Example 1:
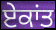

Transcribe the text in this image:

ਏਕਾਂਤ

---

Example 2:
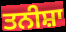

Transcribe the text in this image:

ਤਨੀਸ਼ਾ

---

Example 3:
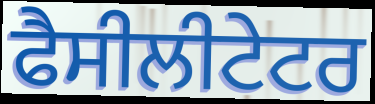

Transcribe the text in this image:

ਫੈਸੀਲੀਟੇਟਰ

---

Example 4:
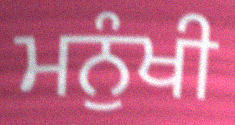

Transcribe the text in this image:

ਮਨੁੰਖੀ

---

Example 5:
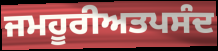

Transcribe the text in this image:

ਜਮਹੂਰੀਅਤਪਸੰਦ